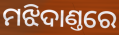
ମଝିଦାଣ୍ତରେ